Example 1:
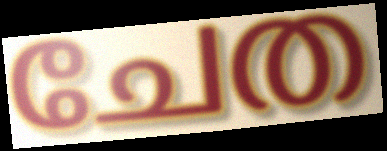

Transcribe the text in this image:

ചേത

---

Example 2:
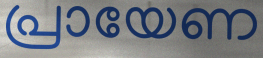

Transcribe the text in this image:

പ്രായേണ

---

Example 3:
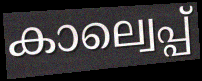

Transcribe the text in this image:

കാല്വെപ്പ്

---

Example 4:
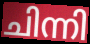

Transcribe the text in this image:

ചിന്നി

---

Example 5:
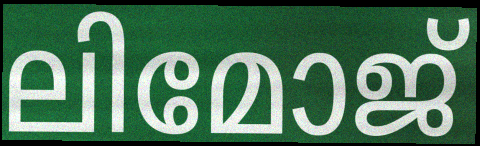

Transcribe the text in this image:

ലിമോജ്